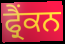
ਫ੍ਰੈਂਕਨ